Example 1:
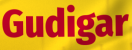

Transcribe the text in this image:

Gudigar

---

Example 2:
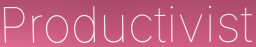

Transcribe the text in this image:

Productivist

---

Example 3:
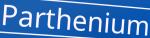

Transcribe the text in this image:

Parthenium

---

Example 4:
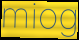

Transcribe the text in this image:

miog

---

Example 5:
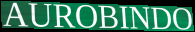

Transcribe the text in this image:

AUROBINDO